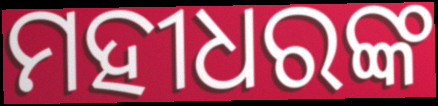
ମହୀଧରଙ୍କ